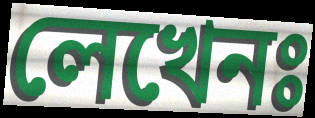
লেখেনঃ